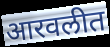
आरवलीत